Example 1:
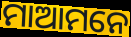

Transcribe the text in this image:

ମାଆମନେ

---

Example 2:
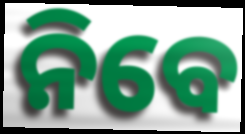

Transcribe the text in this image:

ନିବେ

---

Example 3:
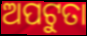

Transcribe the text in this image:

ଅପଟୁତା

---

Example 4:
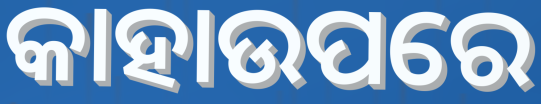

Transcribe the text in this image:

କାହାଉପରେ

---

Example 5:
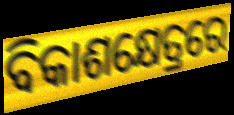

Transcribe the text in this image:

ବିକାଶକ୍ଷେତ୍ରରେ